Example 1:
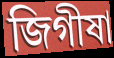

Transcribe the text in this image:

জিগীষা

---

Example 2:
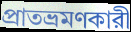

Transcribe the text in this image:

প্রাতভ্রমণকারী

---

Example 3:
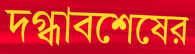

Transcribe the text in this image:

দগ্ধাবশেষের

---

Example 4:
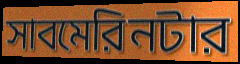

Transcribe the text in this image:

সাবমেরিনটার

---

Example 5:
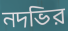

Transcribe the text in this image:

নদভির